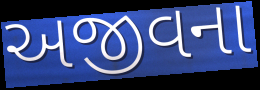
અજીવના